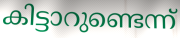
കിട്ടാറുണ്ടെന്ന്